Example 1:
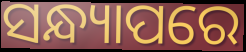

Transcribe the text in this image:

ସନ୍ଧ୍ୟାପରେ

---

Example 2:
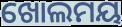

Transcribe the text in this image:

ଖୋଲମୟ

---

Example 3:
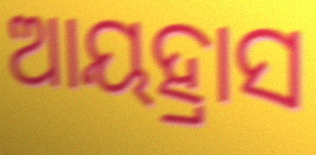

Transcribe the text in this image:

ଆୟହ୍ରାସ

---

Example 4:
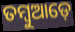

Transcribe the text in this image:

ତମ୍ବୁଆଡ଼େ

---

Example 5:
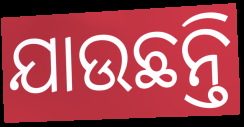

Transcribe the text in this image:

ଯାଉଛନ୍ତି